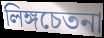
লিঙ্গচেতনা